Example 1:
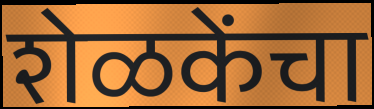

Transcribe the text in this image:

शेळकेंचा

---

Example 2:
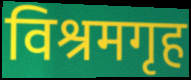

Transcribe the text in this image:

विश्रमगृह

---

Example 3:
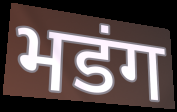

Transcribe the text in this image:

भडंग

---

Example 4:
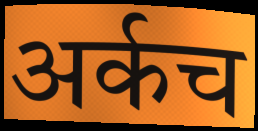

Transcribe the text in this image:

अर्कच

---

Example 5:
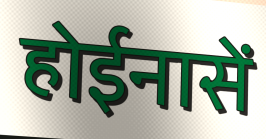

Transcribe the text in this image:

होईनासें